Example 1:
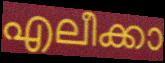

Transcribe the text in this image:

എലീക്കാ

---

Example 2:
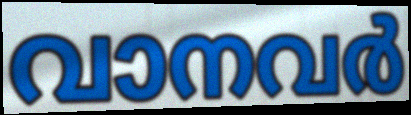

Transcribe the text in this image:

വാനവർ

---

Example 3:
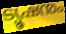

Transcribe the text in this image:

ട്യൂഷനും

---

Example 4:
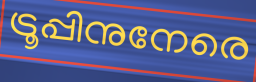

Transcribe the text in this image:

ട്രൂപ്പിനുനേരെ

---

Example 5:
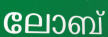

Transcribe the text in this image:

ലോബ്